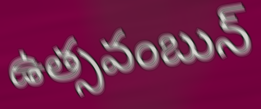
ఉత్సవంబున్